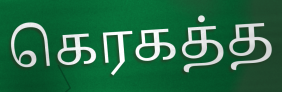
கெரகத்த